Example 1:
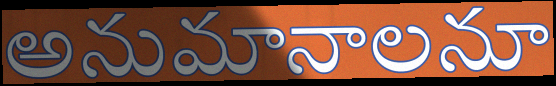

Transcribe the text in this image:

అనుమానాలనూ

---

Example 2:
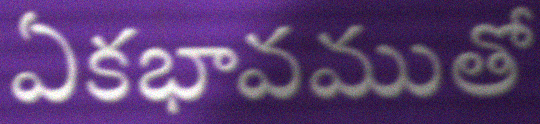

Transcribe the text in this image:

ఏకభావముతో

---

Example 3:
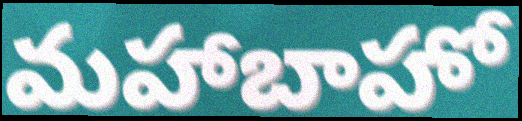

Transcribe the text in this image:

మహాబాహో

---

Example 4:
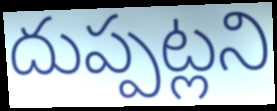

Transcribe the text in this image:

దుప్పట్లని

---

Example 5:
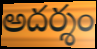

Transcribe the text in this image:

అదర్శం